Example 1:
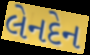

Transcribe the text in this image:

લેનદેન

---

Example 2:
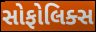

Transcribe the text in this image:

સોફોલિક્સ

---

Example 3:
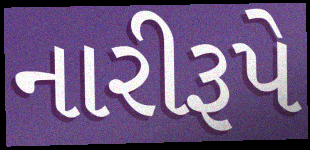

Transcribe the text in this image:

નારીરૂપે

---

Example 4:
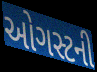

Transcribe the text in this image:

ઓગસ્ટની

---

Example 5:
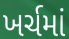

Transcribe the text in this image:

ખર્ચમાં